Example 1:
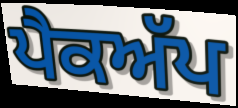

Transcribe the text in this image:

ਪੈਕਅੱਪ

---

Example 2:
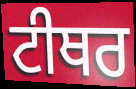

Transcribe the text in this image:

ਟੀਥਰ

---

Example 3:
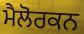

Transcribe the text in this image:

ਮੈਲੋਰਕਨ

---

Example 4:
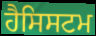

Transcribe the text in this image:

ਹੈਸਿਸਟਮ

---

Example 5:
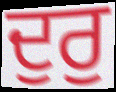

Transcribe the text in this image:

ਦੁਰੁ